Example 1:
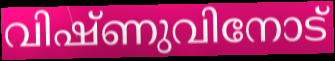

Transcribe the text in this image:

വിഷ്ണുവിനോട്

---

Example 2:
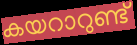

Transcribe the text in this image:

കയറാറുണ്ട്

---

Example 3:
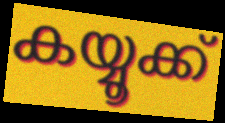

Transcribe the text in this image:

കയ്യൂക്ക്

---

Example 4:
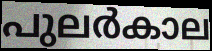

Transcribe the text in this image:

പുലർകാല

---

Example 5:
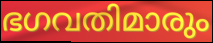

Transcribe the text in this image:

ഭഗവതിമാരും